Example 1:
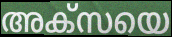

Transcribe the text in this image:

അക്സയെ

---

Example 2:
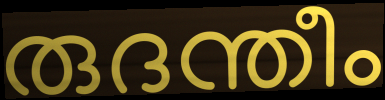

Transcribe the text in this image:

രുദന്തീം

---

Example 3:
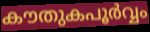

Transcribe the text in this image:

കൗതുകപൂർവ്വം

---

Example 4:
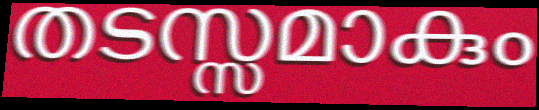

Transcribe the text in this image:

തടസ്സമാകും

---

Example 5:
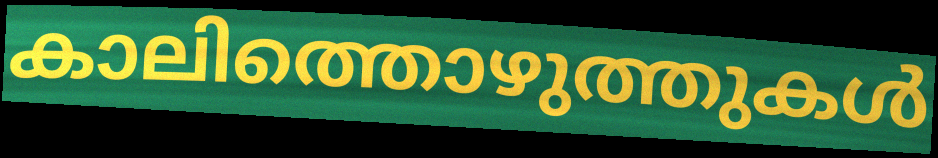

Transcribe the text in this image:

കാലിത്തൊഴുത്തുകൾ